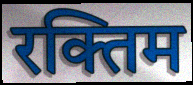
रक्तिम